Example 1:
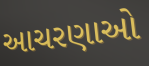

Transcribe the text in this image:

આચરણાઓ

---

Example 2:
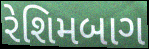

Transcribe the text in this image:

રેશિમબાગ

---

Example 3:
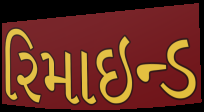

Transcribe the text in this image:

રિમાઇન્ડ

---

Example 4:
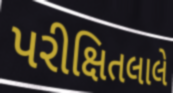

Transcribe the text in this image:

પરીક્ષિતલાલે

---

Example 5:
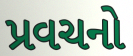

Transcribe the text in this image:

પ્રવચનો